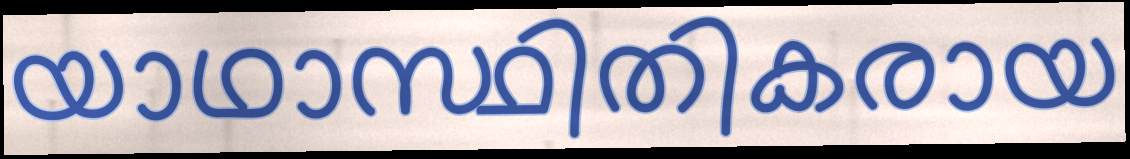
യാഥാസ്ഥിതികരായ